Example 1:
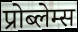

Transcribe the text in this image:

प्रोब्लेम्स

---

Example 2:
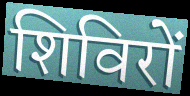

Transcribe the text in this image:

शिविरों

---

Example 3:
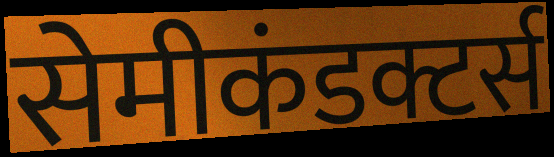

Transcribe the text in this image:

सेमीकंडक्टर्स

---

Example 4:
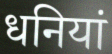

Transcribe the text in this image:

धनियां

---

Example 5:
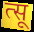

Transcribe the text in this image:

त्सू